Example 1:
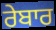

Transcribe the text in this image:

ਰੇਬਾਰ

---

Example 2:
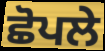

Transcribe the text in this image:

ਛੋਪਲੇ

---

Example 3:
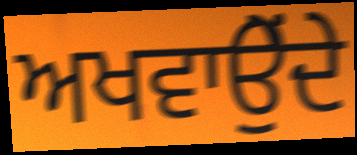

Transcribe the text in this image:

ਅਖਵਾਉੇਂਦੇ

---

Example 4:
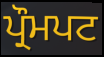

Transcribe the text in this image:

ਪ੍ਰੌਮਪਟ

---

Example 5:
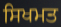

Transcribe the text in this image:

ਸਿਖਮਤ